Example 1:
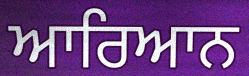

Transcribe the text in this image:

ਆਰਿਆਨ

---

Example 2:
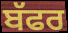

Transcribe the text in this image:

ਬੱਫਰ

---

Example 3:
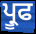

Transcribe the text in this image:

ਪ੍ਰੂਫ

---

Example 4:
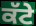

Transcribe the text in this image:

ਕੱਟੇ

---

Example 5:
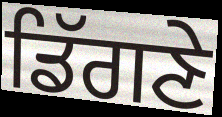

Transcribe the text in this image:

ਡਿੱਗਣੇ